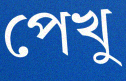
পেখু